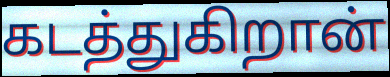
கடத்துகிறான்